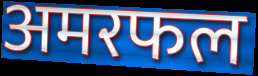
अमरफल